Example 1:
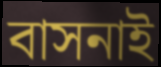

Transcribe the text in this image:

বাসনাই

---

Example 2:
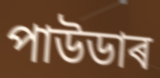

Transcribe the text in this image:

পাউডাৰ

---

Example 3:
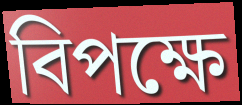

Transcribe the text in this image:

বিপক্ষে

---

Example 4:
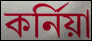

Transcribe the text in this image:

কৰ্নিয়া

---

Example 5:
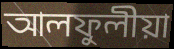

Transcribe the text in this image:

আলফুলীয়া